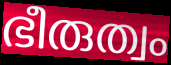
ഭീരുത്വം